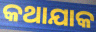
କଥାଯାକ